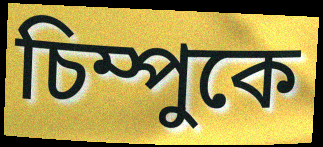
চিম্পুকে